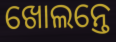
ଖୋଲନ୍ତେ